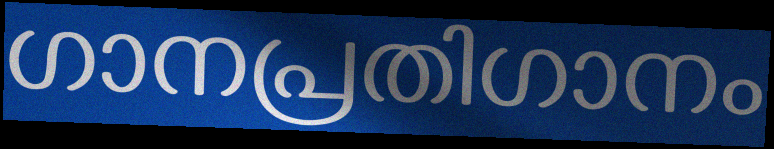
ഗാനപ്രതിഗാനം